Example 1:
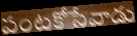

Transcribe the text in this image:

పంటకోసేవాడు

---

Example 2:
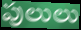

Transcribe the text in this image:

పులులు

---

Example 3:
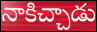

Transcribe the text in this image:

నాకిచ్చాడు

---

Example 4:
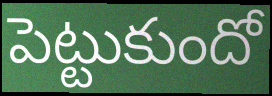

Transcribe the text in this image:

పెట్టుకుందో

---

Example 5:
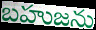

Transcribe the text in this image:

బహుజను